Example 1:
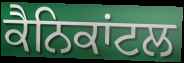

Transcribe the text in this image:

ਕੈਨਿਕਾਂਟਲ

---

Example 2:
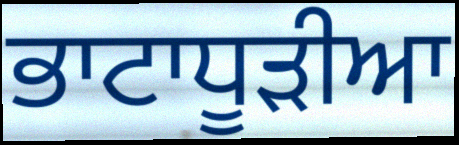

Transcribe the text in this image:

ਭਾਟਾਧੂੜੀਆ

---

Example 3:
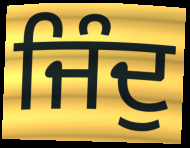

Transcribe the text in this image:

ਜਿੰਦੁ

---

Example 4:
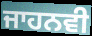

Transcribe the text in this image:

ਜਾਹਨਵੀ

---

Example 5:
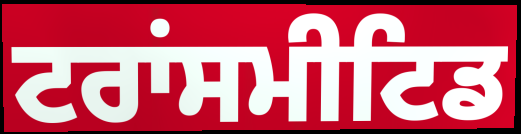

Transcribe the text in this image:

ਟਰਾਂਸਮੀਟਿਡ